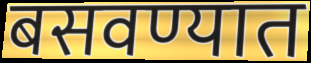
बसवण्यात